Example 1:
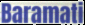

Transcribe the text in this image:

Baramati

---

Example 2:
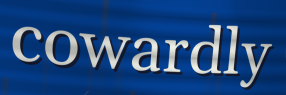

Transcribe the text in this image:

cowardly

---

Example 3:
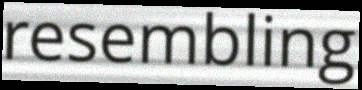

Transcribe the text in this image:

resembling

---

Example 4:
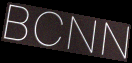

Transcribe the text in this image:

BCNN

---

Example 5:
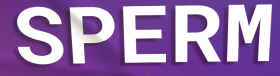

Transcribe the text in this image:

SPERM